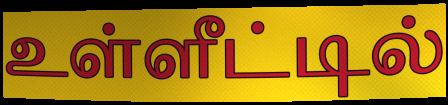
உள்ளீட்டில்